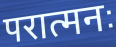
परात्मनः